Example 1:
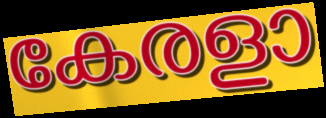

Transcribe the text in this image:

കേരളാ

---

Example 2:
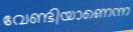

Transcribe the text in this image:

വേണ്ടിയാണെന്ന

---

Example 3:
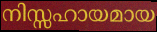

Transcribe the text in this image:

നിസ്സഹായമായ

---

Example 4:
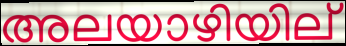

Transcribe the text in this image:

അലയാഴിയില്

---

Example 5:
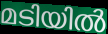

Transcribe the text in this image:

മടിയിൽ